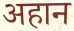
अहान